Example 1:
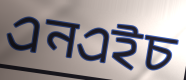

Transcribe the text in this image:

এনএইচ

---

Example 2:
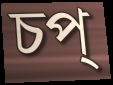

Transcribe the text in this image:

চপ্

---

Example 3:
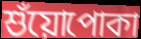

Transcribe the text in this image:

শুঁয়োপোকা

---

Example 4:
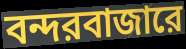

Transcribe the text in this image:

বন্দরবাজারে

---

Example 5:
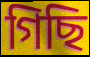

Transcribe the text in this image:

গিছি